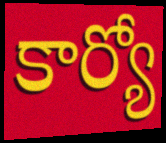
కార్యో